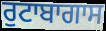
ਰੁਟਾਬਾਗਾਸ